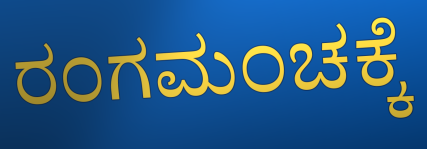
ರಂಗಮಂಚಕ್ಕೆ